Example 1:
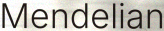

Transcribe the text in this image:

Mendelian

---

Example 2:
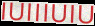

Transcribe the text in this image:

IUIIIUIU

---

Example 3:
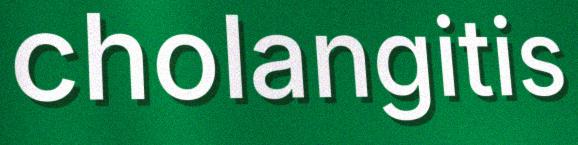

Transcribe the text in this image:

cholangitis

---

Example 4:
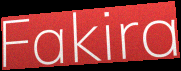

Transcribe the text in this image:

Fakira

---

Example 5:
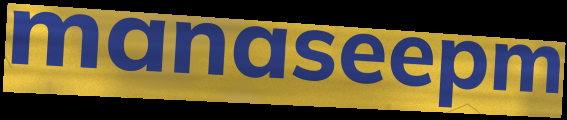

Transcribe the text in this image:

manaseepm